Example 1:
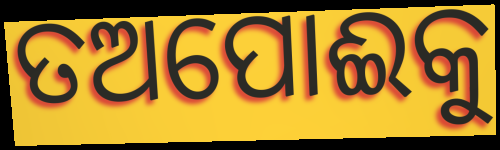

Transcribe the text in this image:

ତଅପୋଈକୁ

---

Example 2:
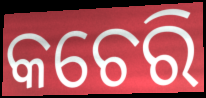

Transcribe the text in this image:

କଚେରି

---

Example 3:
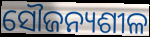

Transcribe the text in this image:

ସୌଜନ୍ୟଶୀଳ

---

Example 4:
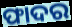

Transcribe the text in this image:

ଫାଦର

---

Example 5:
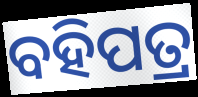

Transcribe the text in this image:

ବହିପତ୍ର